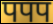
पपप